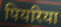
पियरिया